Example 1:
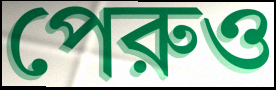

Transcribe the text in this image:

পেরুও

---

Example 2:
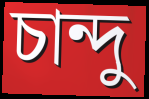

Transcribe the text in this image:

চান্দু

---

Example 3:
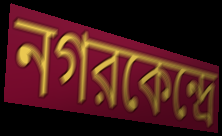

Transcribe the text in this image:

নগরকেন্দ্রে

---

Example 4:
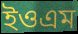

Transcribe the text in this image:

ইওএম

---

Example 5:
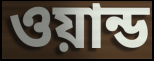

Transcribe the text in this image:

ওয়ান্ড